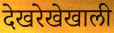
देखरेखेखाली